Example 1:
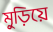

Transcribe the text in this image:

মুড়িয়ে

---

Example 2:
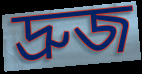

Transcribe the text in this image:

দ্রুজ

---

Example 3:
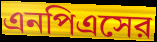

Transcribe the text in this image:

এনপিএসের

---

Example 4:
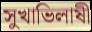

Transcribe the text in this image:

সুখাভিলাষী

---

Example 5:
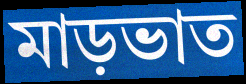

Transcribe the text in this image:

মাড়ভাত